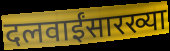
दलवाईंसारख्या